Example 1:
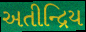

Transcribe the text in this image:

અતીન્દ્રિય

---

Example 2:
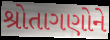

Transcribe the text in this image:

શ્રોતાગણોને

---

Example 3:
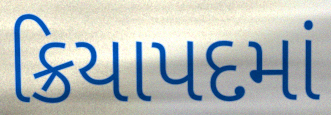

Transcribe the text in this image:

ક્રિયાપદમાં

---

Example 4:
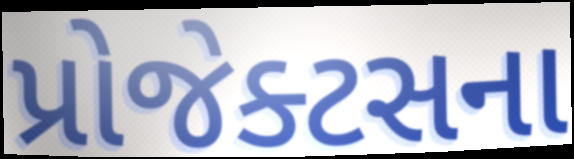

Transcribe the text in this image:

પ્રોજેક્ટસના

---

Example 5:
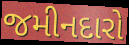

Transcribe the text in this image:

જમીનદારો